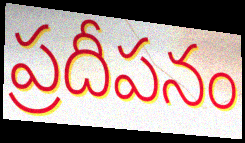
ప్రదీపనం